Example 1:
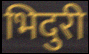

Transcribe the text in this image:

भिदुरी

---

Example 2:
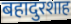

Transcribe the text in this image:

बहादुरशाह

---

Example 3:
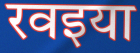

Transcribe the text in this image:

रवइया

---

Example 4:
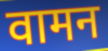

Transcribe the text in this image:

वामन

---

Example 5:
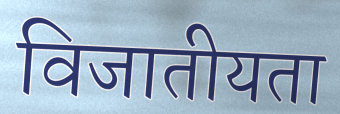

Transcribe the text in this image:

विजातीयता